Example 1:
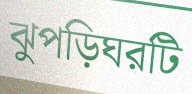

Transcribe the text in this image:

ঝুপড়িঘরটি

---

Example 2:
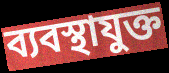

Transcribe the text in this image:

ব্যবস্থাযুক্ত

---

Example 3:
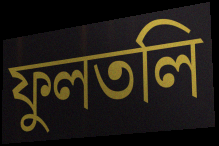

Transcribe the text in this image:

ফুলতলি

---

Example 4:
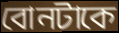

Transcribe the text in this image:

বোনটাকে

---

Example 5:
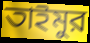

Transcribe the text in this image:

তাইমুর